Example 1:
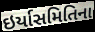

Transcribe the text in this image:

ઇર્યાસમિતિના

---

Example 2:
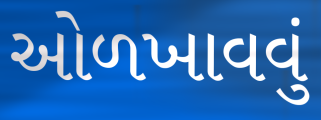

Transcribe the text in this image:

ઓળખાવવું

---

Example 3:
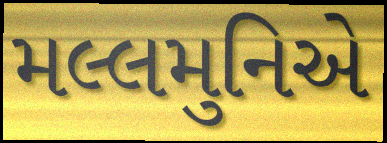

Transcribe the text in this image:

મલ્લમુનિએ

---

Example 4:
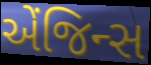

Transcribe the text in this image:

એંજિન્સ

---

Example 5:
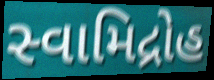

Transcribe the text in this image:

સ્વામિદ્રોહ